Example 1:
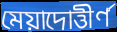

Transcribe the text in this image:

মেয়াদোত্তীর্ণ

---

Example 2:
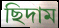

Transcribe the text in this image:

ছিদাম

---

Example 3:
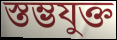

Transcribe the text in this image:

স্তম্ভযুক্ত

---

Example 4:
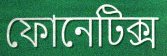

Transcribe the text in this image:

ফোনেটিক্স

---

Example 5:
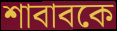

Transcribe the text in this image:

শাবাবকে